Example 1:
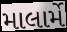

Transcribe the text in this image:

માલાર્મે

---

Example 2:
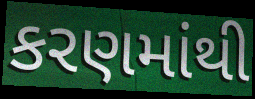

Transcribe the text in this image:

કરણમાંથી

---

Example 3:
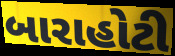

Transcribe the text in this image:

બારાહોટી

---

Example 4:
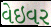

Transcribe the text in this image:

વેઇવર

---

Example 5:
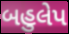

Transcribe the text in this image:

બહુલેપ